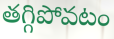
తగ్గిపోవటం